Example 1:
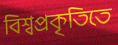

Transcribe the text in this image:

বিশ্বপ্রকৃতিতে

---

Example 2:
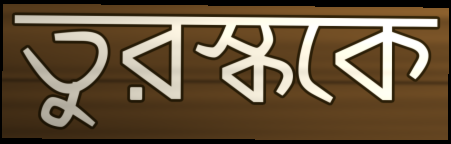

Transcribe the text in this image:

তুরস্ককে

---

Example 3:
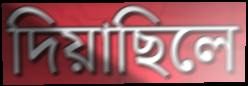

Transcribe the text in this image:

দিয়াছিলে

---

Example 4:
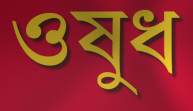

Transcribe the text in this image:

ওষুধ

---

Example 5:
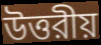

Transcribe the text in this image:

উত্তরীয়